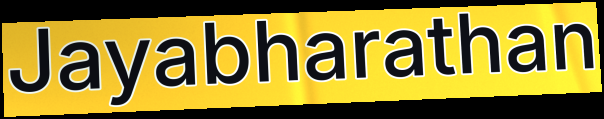
Jayabharathan